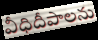
వీధిదీపాలను